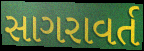
સાગરાવર્ત